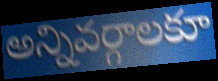
అన్నివర్గాలకూ